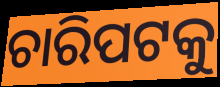
ଚାରିପଟକୁ